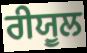
ਰੀਯੂਲ